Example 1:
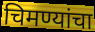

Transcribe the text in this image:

चिमण्यांचा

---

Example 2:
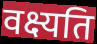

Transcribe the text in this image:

वक्ष्यति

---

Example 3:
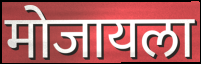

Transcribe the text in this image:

मोजायला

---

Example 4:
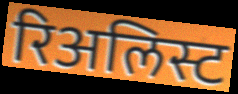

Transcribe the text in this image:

रिअलिस्ट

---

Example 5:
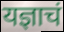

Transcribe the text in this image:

यज्ञाचं